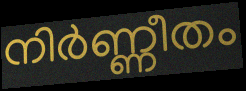
നിർണ്ണീതം